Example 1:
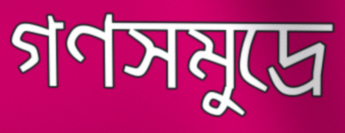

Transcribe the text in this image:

গণসমুদ্রে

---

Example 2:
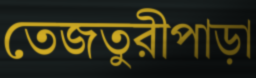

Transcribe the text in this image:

তেজতুরীপাড়া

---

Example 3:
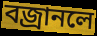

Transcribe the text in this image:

বজ্রানলে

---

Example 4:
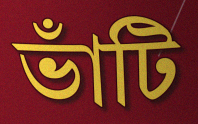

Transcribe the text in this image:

ভাঁটি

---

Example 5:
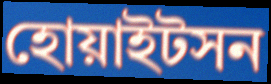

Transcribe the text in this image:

হোয়াইটসন